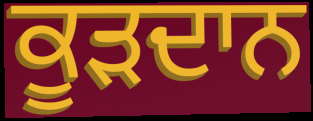
ਕੂੜਦਾਨ